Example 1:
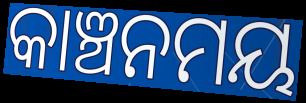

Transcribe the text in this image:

କାଞ୍ଚନମୟ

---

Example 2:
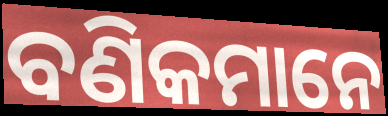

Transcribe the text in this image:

ବଣିକମାନେ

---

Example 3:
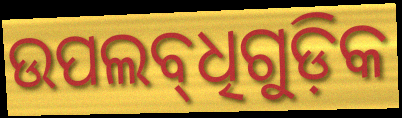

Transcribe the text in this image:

ଉପଲବ୍‌ଧିଗୁଡ଼ିକ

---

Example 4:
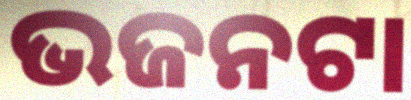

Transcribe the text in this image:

ଭଜନଟା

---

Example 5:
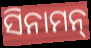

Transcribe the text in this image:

ସିନାମନ୍